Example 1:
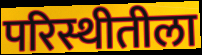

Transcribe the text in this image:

परिस्थीतीला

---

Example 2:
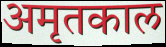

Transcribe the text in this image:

अमृतकाल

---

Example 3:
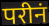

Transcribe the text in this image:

परीनं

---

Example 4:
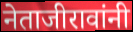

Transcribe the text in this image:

नेताजीरावांनी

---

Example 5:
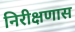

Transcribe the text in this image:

निरीक्षणास